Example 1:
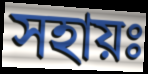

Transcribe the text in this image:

সহায়ঃ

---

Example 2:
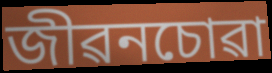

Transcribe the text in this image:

জীৱনচোৱা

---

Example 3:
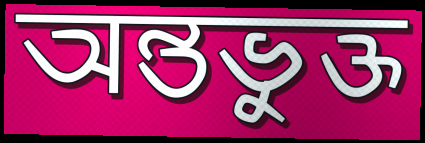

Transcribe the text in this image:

অন্তভুক্ত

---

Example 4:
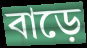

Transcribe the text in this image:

বাড়ে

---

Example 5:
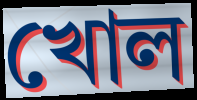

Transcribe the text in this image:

খোল